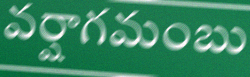
వర్షాగమంబు